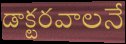
డాక్టరవాలనే